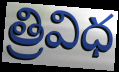
త్రివిధ